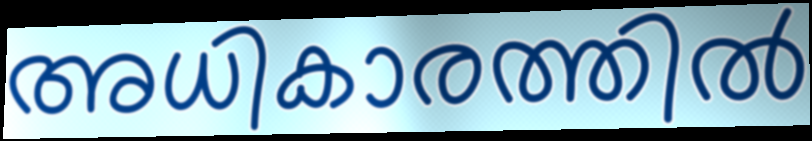
അധികാരത്തിൽ